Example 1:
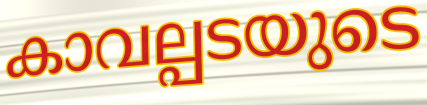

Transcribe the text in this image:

കാവല്പടയുടെ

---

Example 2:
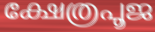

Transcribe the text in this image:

ക്ഷേത്രപൂജ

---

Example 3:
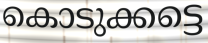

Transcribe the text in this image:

കൊടുക്കട്ടെ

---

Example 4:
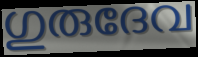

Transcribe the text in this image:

ഗുരുദേവ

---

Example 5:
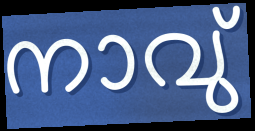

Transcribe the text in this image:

നാവു്